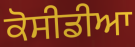
ਕੋਸੀਡੀਆ